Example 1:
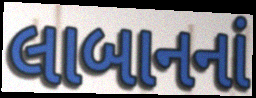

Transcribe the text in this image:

લાબાનનાં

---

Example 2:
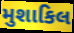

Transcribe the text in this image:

મુશાકિલ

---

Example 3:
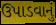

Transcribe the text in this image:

ઉપાડવાનું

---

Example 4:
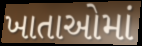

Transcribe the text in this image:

ખાતાઓમાં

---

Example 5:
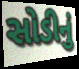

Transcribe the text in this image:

સોડીનું